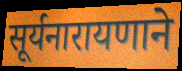
सूर्यनारायणाने